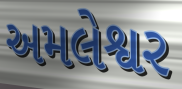
અમલેશ્વર